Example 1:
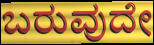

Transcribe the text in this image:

ಬರುವುದೇ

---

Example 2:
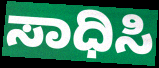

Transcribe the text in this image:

ಸಾಧಿಸಿ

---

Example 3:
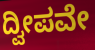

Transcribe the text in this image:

ದ್ವೀಪವೇ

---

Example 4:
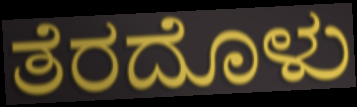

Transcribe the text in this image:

ತೆರದೊಳು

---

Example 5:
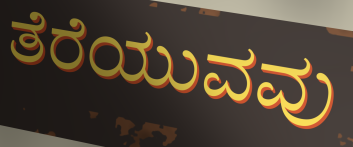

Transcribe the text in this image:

ತೆರೆಯುವವು